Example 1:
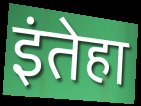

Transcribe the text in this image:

इंतेहा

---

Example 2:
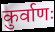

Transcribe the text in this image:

कुर्वाणः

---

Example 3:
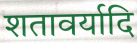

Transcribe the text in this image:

शतावर्यादि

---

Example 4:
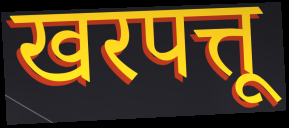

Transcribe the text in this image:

खरपत्तू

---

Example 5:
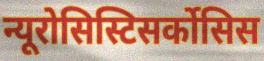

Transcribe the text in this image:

न्यूरोसिस्टिसर्कोसिस